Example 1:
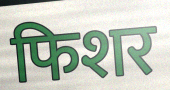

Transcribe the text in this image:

फिशर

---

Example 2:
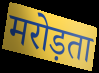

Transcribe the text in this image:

मरोड़ता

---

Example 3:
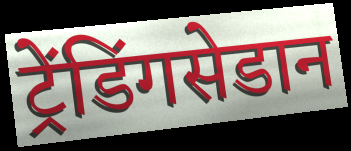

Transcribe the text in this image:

ट्रेंडिंगसेडान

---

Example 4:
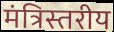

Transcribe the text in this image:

मंत्रिस्तरीय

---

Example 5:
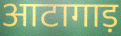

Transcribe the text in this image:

आटागाड़